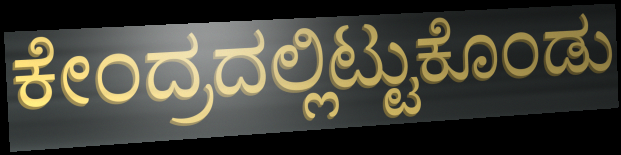
ಕೇಂದ್ರದಲ್ಲಿಟ್ಟುಕೊಂಡು